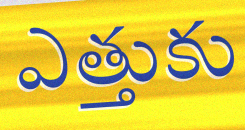
ఎత్తుకు